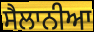
ਸੈਲਾਨੀਆ